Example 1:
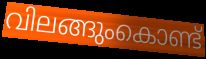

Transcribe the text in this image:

വിലങ്ങുംകൊണ്ട്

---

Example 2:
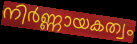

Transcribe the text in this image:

നിർണ്ണായകത്വം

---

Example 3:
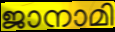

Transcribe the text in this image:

ജാനാമി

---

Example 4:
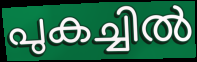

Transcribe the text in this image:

പുകച്ചിൽ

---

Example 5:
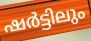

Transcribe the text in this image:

ഷർട്ടിലും